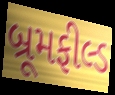
બ્રૂમફીલ્ડ